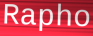
Rapho